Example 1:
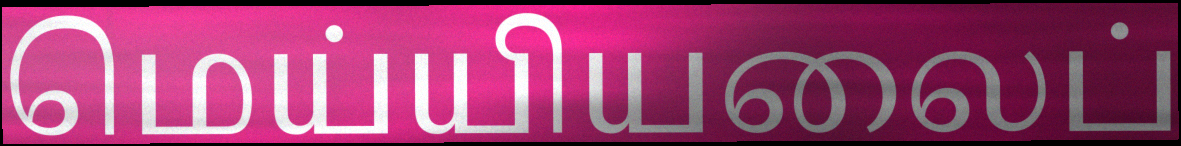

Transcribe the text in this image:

மெய்யியலைப்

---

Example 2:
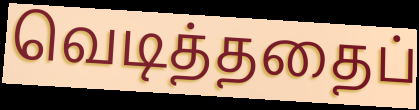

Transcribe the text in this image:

வெடித்ததைப்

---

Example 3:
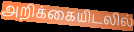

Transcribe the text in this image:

அறிக்கையிடலில்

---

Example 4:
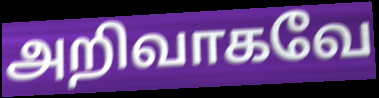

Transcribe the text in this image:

அறிவாகவே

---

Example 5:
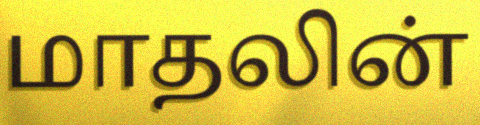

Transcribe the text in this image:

மாதலின்